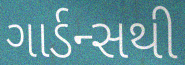
ગાર્ડન્સથી